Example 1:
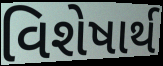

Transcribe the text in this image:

વિશેષાર્થ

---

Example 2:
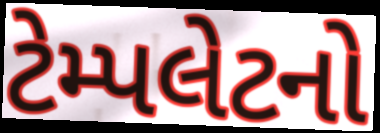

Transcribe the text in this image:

ટેમ્પલેટનો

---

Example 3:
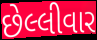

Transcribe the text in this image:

છેલ્લીવાર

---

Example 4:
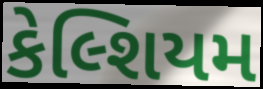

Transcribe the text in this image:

કેલ્શિયમ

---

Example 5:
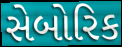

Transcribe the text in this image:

સેબોરિક